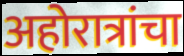
अहोरात्रांचा